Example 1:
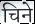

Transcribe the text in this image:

चिने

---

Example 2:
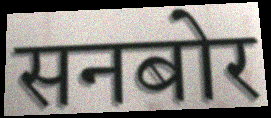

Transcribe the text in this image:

सनबोर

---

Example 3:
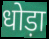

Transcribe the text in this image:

धोड़ा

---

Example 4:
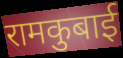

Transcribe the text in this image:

रामकुबाई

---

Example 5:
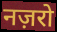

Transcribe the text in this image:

नज़रो